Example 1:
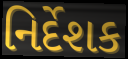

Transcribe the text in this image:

નિર્દેશક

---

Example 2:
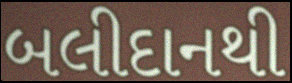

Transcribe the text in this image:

બલીદાનથી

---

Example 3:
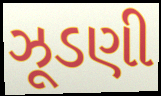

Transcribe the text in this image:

ઝૂડણી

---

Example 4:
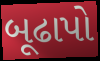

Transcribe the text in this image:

બૂઢાપો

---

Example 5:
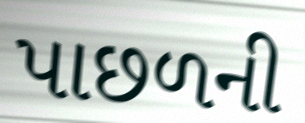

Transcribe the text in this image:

પાછળની